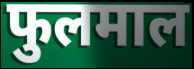
फुलमाल